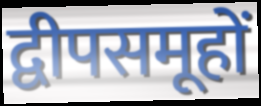
द्वीपसमूहों